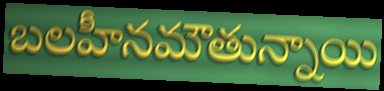
బలహీనమౌతున్నాయి